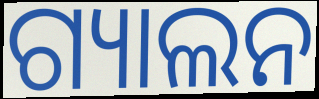
ଗ୍ୟାଲନ